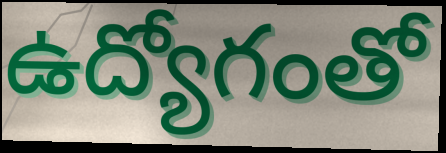
ఉద్యోగంతో